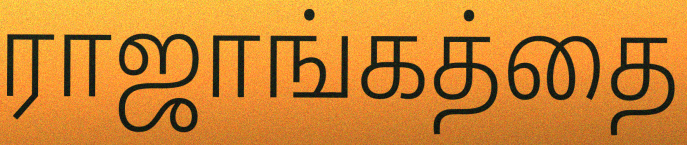
ராஜாங்கத்தை